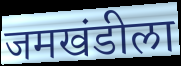
जमखंडीला